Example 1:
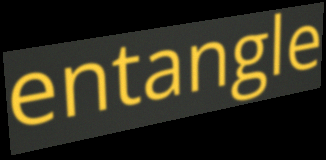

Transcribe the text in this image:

entangle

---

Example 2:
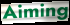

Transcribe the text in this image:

Aiming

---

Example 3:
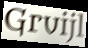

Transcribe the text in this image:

Gruijl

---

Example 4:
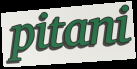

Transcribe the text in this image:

pitani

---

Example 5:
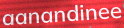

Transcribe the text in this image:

aanandinee